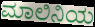
ಮಾಲಿನಿಯ